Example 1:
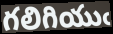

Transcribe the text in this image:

గలిగియుఁ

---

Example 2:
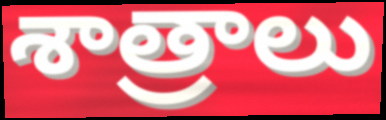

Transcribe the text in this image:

శాత్రాలు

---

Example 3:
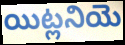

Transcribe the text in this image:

యిట్లనియె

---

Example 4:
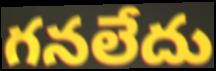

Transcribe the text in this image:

గనలేదు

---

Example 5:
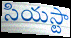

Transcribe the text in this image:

సియస్టా